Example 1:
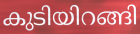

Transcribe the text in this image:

കുടിയിറങ്ങി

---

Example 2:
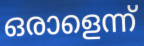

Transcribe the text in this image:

ഒരാളെന്ന്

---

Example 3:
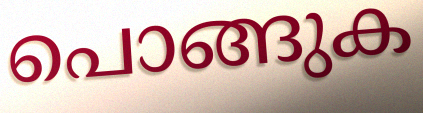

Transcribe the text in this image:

പൊങ്ങുക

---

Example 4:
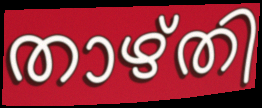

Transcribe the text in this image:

താഴ്തി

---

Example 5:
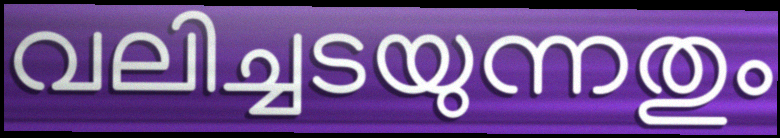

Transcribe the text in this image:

വലിച്ചടയുന്നതും